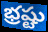
భ్రష్టు